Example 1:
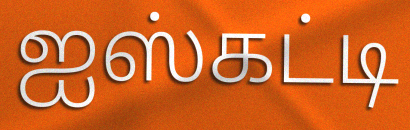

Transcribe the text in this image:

ஐஸ்கட்டி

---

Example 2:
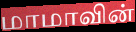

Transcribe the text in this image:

மாமாவின்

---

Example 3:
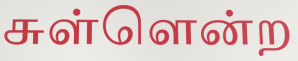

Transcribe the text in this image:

சுள்ளென்ற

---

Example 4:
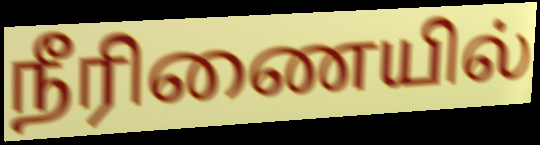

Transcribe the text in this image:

நீரிணையில்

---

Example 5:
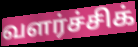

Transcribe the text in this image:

வளர்ச்சிக்